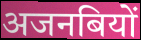
अजनबियों